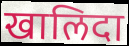
खालिदा